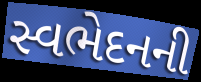
સ્વભેદનની